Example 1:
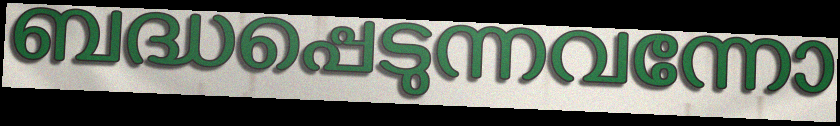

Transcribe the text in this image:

ബദ്ധപ്പെടുന്നവന്നോ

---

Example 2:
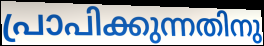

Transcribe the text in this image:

പ്രാപിക്കുന്നതിനു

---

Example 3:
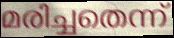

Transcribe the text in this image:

മരിച്ചതെന്ന്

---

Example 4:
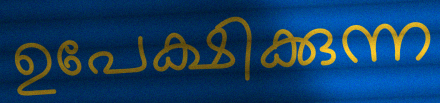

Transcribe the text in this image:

ഉപേക്ഷിക്കുന്ന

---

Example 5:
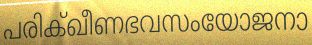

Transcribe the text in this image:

പരിക്ഖീണഭവസംയോജനാ